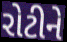
રોટીને